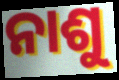
ନାଶୁ